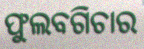
ଫୁଲବଗିଚାର